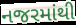
નજરમાંથી